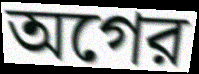
অগের